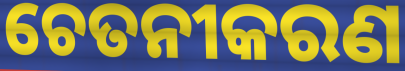
ଚେତନୀକରଣ